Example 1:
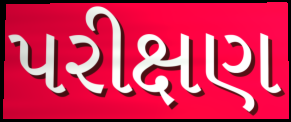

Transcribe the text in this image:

પરીક્ષણ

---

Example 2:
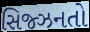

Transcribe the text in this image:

સિજ્ઝનતો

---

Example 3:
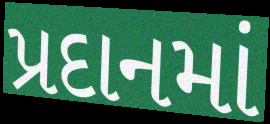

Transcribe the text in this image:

પ્રદાનમાં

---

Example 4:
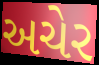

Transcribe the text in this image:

અચેર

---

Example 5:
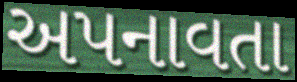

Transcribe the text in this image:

અપનાવતા